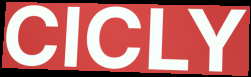
CICLY